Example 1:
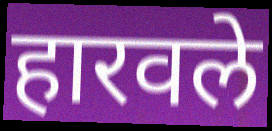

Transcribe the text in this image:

हारवले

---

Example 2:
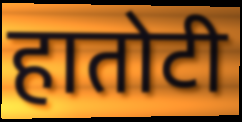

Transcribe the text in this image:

हातोटी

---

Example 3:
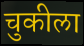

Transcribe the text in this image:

चुकीला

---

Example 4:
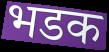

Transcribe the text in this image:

भडक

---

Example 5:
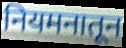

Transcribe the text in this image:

नियमनातून